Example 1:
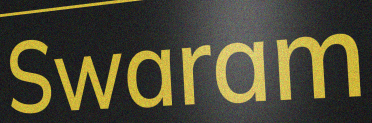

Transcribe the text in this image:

Swaram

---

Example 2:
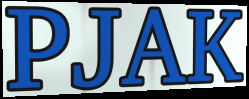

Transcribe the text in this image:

PJAK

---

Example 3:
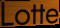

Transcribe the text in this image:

Lotte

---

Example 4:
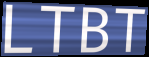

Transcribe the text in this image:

LTBT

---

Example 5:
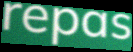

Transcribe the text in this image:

repas